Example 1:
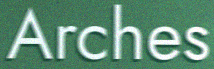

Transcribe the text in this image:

Arches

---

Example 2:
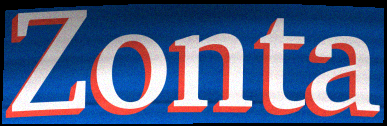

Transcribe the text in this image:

Zonta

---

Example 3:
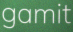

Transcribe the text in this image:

gamit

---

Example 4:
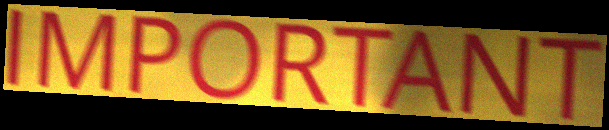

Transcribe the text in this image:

IMPORTANT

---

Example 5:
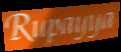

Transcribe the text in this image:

Rupayya